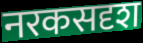
नरकसदृश